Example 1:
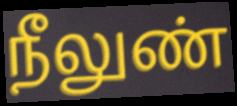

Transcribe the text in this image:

நீலுண்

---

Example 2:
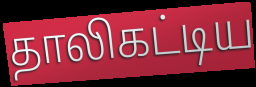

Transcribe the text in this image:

தாலிகட்டிய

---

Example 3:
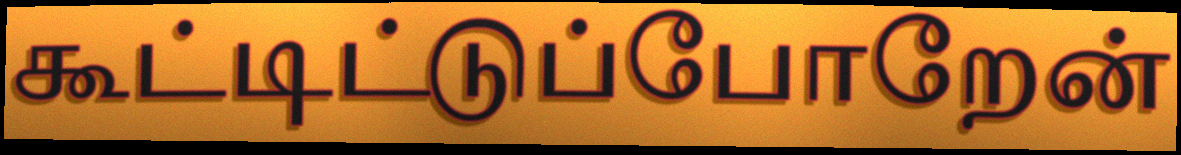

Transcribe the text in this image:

கூட்டிட்டுப்போறேன்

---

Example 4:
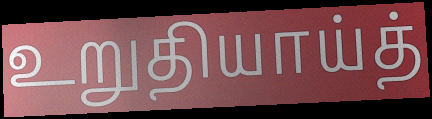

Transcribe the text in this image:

உறுதியாய்த்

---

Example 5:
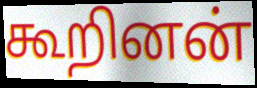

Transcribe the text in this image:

கூறினன்